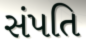
સંપતિ